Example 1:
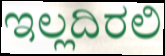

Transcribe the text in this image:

ಇಲ್ಲದಿರಲಿ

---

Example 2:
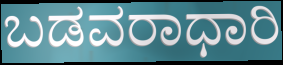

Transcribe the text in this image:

ಬಡವರಾಧಾರಿ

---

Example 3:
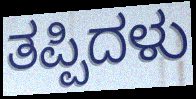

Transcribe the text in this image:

ತಪ್ಪಿದಳು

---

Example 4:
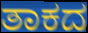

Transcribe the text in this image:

ತಾಕದ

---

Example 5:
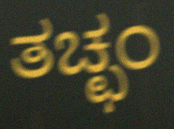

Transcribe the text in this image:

ತಚ್ಛಂ